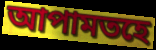
আপামতহে